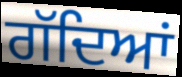
ਗੱਦਿਆਂ